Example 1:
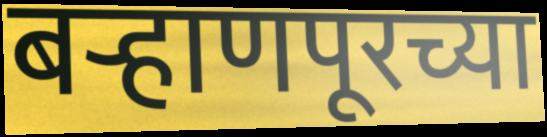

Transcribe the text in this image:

बऱ्हाणपूरच्या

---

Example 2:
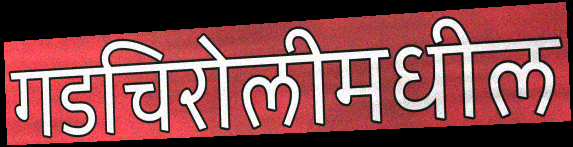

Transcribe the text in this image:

गडचिरोलीमधील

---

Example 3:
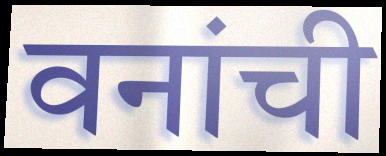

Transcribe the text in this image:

वनांची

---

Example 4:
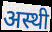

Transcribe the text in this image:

अस्थी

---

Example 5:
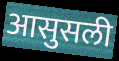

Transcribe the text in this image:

आसुसली